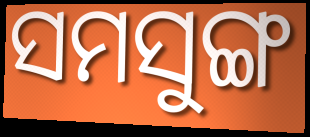
ସମସୁଙ୍ଗ